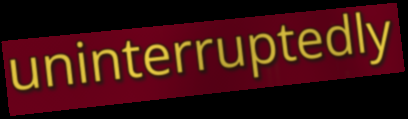
uninterruptedly